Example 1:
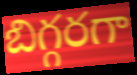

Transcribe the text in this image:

బిగ్గరగా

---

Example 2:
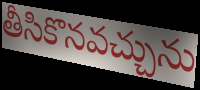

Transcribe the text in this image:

తీసికొనవచ్చును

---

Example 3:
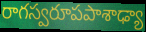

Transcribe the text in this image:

రాగస్వరూపపాశాఢ్యా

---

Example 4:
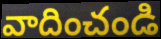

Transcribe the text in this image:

వాదించండి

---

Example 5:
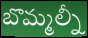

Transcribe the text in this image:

బొమ్మల్నీ